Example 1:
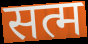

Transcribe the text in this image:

सत्म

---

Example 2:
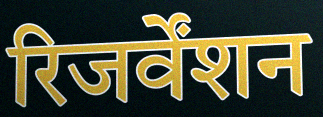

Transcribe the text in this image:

रिजर्वेंशन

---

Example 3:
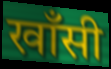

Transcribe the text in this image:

खाँसी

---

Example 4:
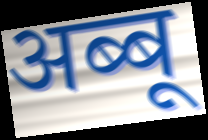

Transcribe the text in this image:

अब्बू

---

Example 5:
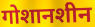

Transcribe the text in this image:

गोशानशीन